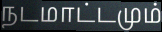
நடமாட்டமும்